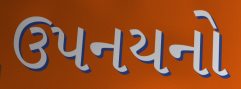
ઉપનયનો